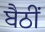
ਬੈਠੀਂ